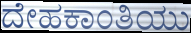
ದೇಹಕಾಂತಿಯು